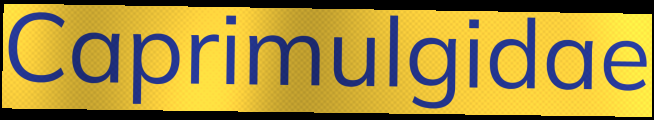
Caprimulgidae